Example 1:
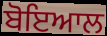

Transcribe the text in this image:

ਬੋਇਆਲ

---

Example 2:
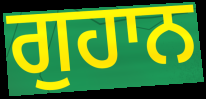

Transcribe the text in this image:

ਗੁਹਾਨ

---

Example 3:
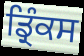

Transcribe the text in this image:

ਡ੍ਰਿੰਕਸ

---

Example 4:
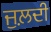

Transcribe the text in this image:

ਜੁਲ਼ਦੀ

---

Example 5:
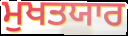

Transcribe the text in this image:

ਮੁਖਤਯਾਰ